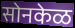
सोनकेळ